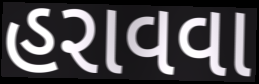
હરાવવા